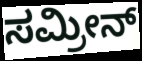
ಸಮ್ರೀನ್